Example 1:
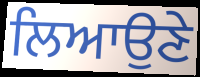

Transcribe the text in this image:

ਲਿਆਉਣੇ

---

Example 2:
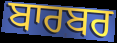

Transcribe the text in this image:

ਬਾਰਬਰ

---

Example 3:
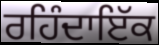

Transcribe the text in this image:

ਰਹਿੰਦਾਇੱਕ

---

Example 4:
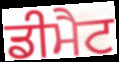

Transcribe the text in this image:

ਡੀਮੈਟ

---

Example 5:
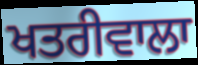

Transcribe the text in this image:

ਖਤਰੀਵਾਲਾ